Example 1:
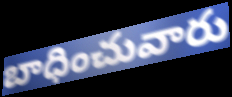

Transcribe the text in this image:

బాధించువారు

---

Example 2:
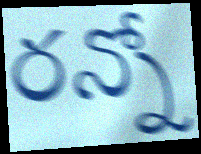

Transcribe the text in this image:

రన్నో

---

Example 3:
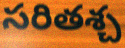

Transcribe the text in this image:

సరితశ్చ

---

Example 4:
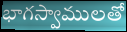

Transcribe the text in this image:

భాగస్వాములతో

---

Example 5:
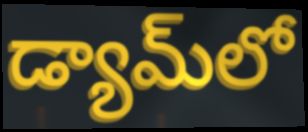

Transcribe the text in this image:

డ్యామ్‌లో